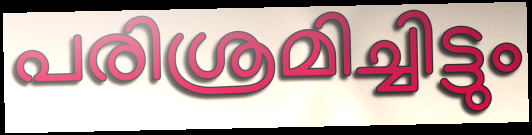
പരിശ്രമിച്ചിട്ടും